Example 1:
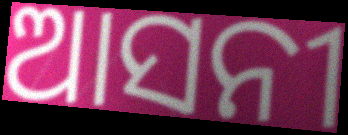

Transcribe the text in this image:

ଆସନୀ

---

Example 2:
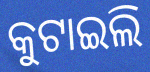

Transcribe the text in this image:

କୁଟାଇଲି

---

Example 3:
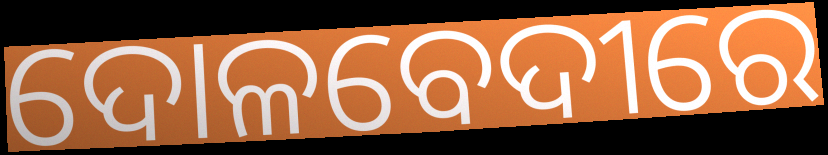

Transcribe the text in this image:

ଦୋଳବେଦୀରେ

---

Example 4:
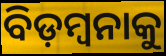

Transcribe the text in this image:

ବିଡ଼ମ୍ୱନାକୁ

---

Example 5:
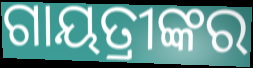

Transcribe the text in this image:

ଗାୟତ୍ରୀଙ୍କର